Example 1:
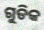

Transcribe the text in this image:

ଗୁଡିକ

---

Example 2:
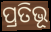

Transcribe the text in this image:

ପ୍ରତିଭୂ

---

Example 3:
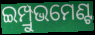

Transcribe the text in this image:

ଇମ୍ପ୍ରୁଭମେଣ୍ଟ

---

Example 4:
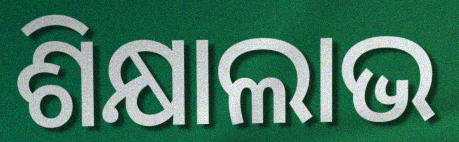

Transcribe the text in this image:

ଶିକ୍ଷାଲାଭ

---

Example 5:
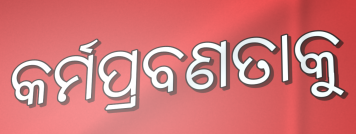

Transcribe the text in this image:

କର୍ମପ୍ରବଣତାକୁ